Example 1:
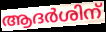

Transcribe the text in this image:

ആദർശിന്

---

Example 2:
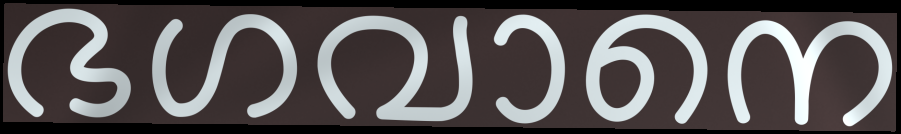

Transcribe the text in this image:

ഭഗവാനെ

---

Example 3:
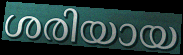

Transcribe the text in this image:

ശരിയായ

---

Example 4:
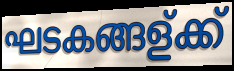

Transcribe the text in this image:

ഘടകങ്ങള്ക്ക്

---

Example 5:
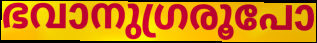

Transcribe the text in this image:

ഭവാനുഗ്രരൂപോ